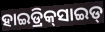
ହାଇଡ୍ରିକ୍‌ସାଇଡ୍